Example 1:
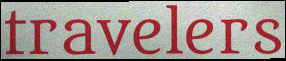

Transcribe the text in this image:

travelers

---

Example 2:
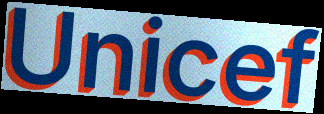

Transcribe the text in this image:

Unicef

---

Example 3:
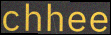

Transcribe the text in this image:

chhee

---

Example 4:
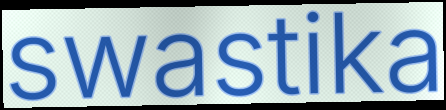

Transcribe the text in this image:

swastika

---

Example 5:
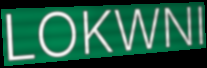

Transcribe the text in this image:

LOKWNI